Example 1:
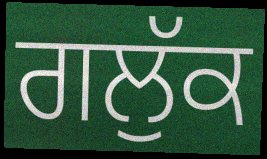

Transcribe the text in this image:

ਗਲੁੱਕ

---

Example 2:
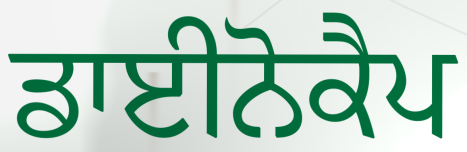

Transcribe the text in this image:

ਡਾਈਨੋਕੈਪ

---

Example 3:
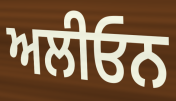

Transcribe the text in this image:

ਅਲੀਓਨ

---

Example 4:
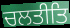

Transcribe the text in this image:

ਚਲਤੀਤਿ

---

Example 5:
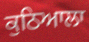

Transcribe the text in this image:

ਕੁਠਿਆਲਾ